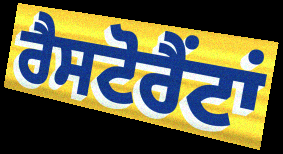
ਰੈਸਟੋਰੈਂਟਾਂ